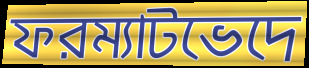
ফরম্যাটভেদে